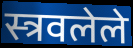
स्त्रवलेले